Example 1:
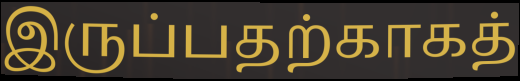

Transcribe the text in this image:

இருப்பதற்காகத்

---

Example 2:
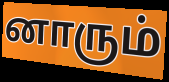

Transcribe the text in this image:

னாரும்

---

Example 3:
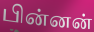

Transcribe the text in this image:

பின்னன்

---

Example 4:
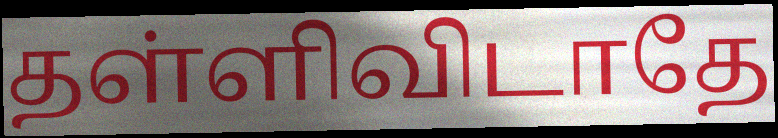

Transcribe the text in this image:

தள்ளிவிடாதே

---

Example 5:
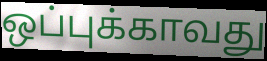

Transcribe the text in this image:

ஒப்புக்காவது